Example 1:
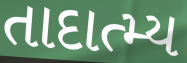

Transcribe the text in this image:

તાદાત્મ્ય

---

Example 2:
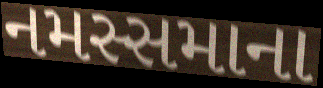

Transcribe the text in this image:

નમસ્સમાના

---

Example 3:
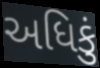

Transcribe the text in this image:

અધિકું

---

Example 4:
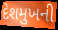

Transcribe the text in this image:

દેશમુખની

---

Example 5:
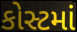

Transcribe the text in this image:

કોસ્ટમાં